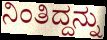
ನಿಂತಿದ್ದನ್ನು